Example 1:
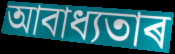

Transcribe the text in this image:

আবাধ্যতাৰ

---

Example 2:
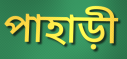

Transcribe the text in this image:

পাহাড়ী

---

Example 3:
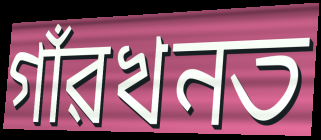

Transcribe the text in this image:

গাঁৱখনত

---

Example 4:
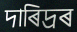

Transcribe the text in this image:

দাৰিদ্ৰৰ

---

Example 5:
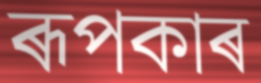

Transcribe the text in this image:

ৰূপকাৰ